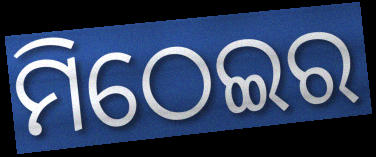
ମିଠେଇର